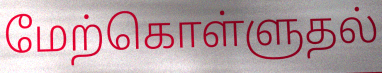
மேற்கொள்ளுதல்